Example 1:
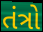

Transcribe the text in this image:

તંત્રો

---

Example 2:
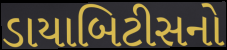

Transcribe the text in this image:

ડાયાબિટીસનો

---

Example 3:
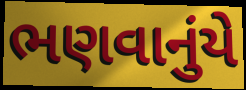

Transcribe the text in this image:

ભણવાનુંયે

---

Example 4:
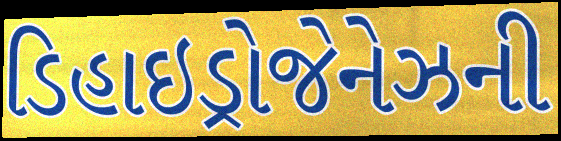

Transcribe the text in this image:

ડિહાઇડ્રોજેનેઝની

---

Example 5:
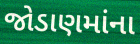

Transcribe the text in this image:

જોડાણમાંના